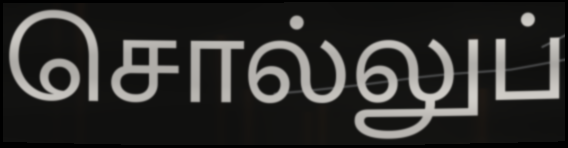
சொல்லுப்